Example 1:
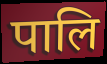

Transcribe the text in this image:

पालि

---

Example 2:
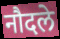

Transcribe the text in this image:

नौदले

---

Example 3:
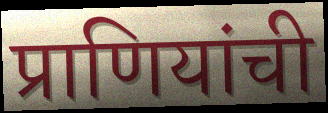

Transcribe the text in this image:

प्राणियांची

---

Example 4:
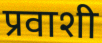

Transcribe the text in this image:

प्रवाशी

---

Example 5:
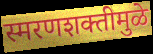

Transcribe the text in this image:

स्मरणशक्तीमुळे